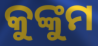
କୁଙ୍କୁମ